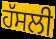
ਹੱਸਲੀ